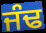
ਜੰਢ